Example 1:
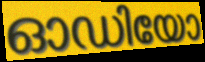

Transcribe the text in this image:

ഓഡിയോ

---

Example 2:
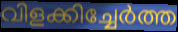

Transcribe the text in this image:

വിളക്കിച്ചേർത്ത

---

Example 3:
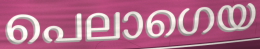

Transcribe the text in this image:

പെലാഗെയ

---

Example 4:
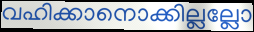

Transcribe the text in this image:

വഹിക്കാനൊക്കില്ലല്ലോ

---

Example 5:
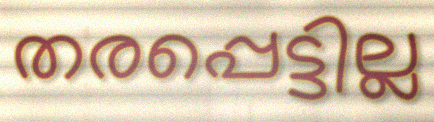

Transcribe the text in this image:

തരപ്പെട്ടില്ല